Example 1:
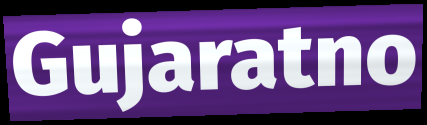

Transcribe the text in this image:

Gujaratno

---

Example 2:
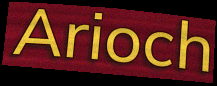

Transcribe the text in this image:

Arioch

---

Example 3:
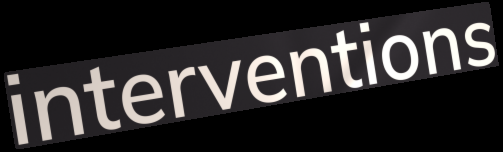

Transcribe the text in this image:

interventions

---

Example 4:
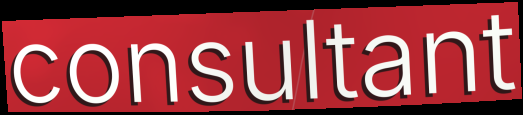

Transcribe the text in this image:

consultant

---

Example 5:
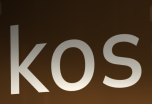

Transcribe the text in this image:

kos